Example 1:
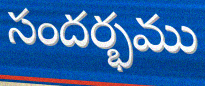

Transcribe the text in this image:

సందర్భము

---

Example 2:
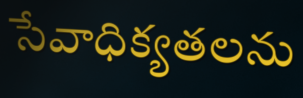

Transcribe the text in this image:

సేవాధిక్యతలను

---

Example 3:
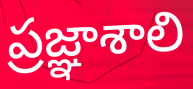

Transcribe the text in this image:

ప్రజ్ఞాశాలి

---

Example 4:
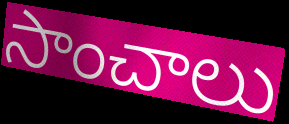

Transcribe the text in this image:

సాంచాలు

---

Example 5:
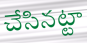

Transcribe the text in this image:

చేసినట్టా